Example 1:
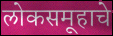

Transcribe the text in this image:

लोकसमूहाचे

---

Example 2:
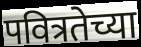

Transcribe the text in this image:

पवित्रतेच्या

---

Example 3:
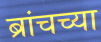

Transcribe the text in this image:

ब्रांचच्या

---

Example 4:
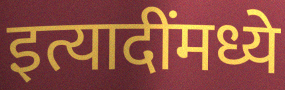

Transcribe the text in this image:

इत्यादींमध्ये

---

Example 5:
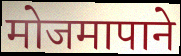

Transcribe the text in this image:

मोजमापाने